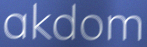
akdom